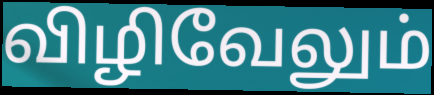
விழிவேலும்